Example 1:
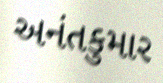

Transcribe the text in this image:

અનંતકુમાર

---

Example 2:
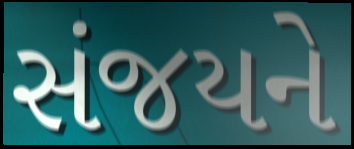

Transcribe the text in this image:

સંજયને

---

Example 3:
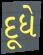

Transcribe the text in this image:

દૂધે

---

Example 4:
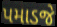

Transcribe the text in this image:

પમાડજે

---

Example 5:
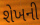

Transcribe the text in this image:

શેખની